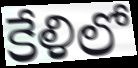
కేళిలో